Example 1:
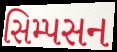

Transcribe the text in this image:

સિમ્પસન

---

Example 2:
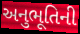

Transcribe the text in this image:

અનુભૂતિની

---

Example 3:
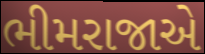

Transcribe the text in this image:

ભીમરાજાએ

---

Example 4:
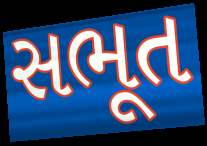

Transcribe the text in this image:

સભૂત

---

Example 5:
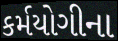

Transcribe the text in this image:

કર્મયોગીના